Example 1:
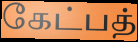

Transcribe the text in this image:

கேட்பத்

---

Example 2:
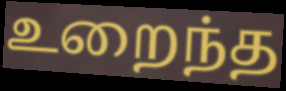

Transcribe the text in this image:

உறைந்த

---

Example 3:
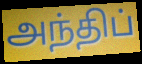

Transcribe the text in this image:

அந்திப்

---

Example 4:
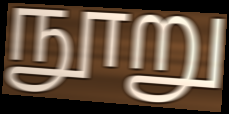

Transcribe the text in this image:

நூறு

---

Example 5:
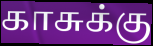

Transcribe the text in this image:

காசுக்கு